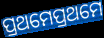
ପ୍ରଥମେପ୍ରଥମେ